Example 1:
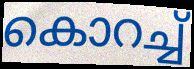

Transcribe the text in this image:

കൊറച്ച്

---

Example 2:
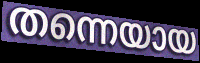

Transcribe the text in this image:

തന്നെയായ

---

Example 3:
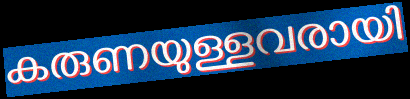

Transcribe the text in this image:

കരുണയുള്ളവരായി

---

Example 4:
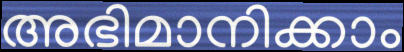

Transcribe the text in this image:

അഭിമാനിക്കാം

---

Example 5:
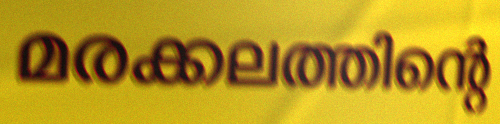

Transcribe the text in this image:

മരക്കലത്തിന്റെ